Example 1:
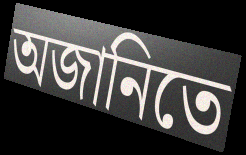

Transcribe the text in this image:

অজানিতে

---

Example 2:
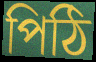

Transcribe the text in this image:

পিঠি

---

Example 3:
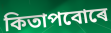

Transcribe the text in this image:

কিতাপবোৰে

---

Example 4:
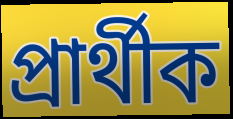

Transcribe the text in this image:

প্ৰাৰ্থীক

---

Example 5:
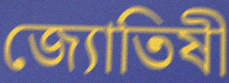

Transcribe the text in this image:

জ্যোতিষী